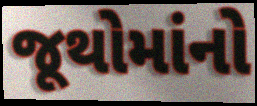
જૂથોમાંનો